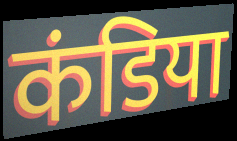
कंडिया